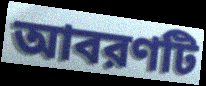
আবরণটি